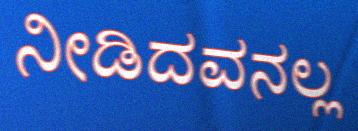
ನೀಡಿದವನಲ್ಲ